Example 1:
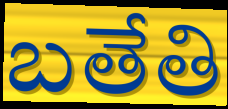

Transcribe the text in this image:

బతేతి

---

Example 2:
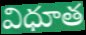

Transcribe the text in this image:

విధూత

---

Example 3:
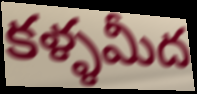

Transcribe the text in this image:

కళ్ళమీద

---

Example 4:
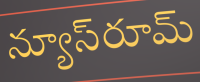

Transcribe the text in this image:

న్యూస్‌రూమ్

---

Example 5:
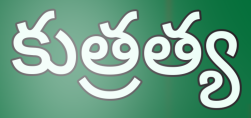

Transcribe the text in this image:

కుత్రత్య